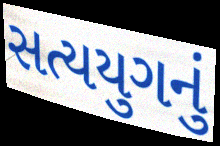
સત્યયુગનું